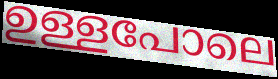
ഉള്ളപോലെ